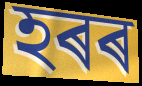
হৰৰ